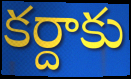
కర్దాకు